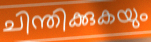
ചിന്തിക്കുകയും